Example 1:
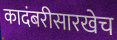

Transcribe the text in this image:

कादंबरीसारखेच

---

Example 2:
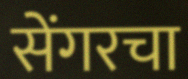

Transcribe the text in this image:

सेंगरचा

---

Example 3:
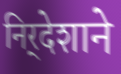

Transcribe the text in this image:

निर्देशाने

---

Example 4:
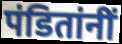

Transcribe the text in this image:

पंडितांनीं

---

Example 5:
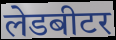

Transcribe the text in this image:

लेडबीटर